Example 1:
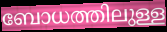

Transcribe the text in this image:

ബോധത്തിലുള്ള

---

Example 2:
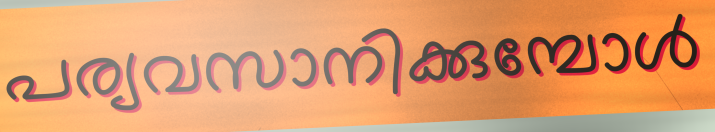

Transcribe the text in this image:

പര്യവസാനിക്കുമ്പോൾ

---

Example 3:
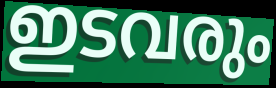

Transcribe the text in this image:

ഇടവരും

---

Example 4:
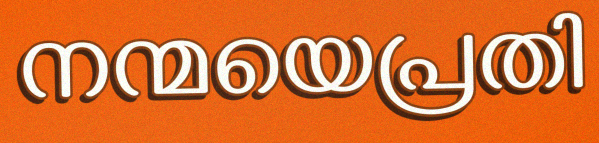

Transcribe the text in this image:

നന്മയെപ്രതി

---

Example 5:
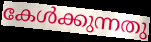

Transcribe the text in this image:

കേൾക്കുന്നതു